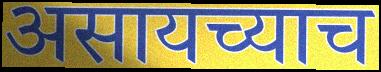
असायच्याच